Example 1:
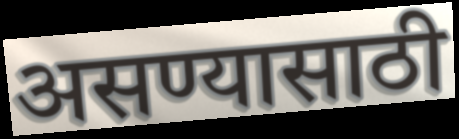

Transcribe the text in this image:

असण्यासाठी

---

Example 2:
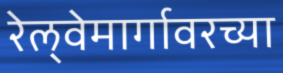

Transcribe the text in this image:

रेल्वेमार्गावरच्या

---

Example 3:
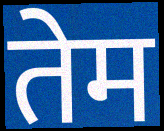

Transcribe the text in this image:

तेम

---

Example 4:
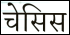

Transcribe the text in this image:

चेसिस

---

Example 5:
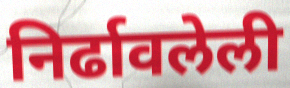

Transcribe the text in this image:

निर्ढावलेली